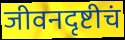
जीवनदृष्टीचं